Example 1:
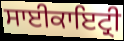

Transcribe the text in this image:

ਸਾਈਕਾਇਟ੍ਰੀ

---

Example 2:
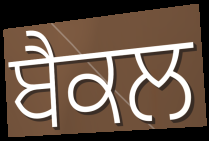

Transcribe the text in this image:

ਬੈਕਲ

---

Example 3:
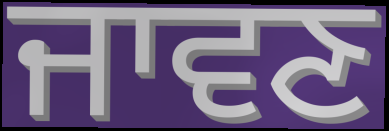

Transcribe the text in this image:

ਜਾਵਣ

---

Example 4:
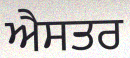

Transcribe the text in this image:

ਐਸਤਰ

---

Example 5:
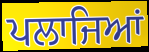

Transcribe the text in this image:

ਪਲਾਜਿਆਂ